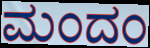
ಮಂದಂ